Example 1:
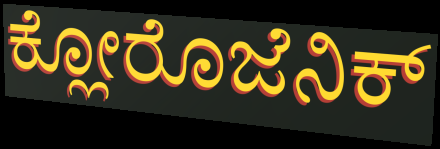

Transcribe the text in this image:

ಕ್ಲೋರೊಜೆನಿಕ್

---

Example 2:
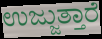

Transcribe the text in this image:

ಉಜ್ಜುತ್ತಾರೆ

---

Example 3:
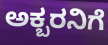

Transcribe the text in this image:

ಅಕ್ಬರನಿಗೆ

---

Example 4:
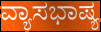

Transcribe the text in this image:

ವ್ಯಾಸಭಾಷ್ಯ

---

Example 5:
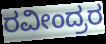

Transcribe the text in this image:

ರವೀಂದ್ರರ